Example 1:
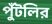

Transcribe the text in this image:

পুঁটলির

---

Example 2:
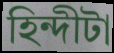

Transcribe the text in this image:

হিন্দীটা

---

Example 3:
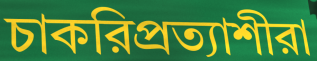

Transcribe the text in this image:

চাকরিপ্রত্যাশীরা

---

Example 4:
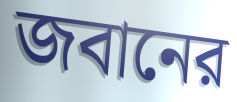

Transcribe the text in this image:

জবানের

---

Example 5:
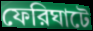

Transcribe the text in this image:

ফেরিঘাটে